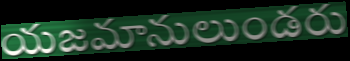
యజమానులుండరు